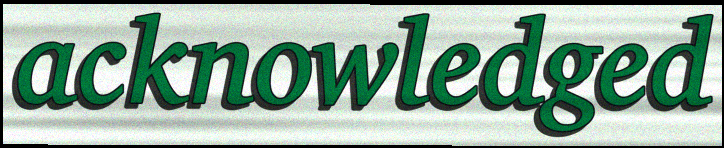
acknowledged